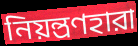
নিয়ন্ত্রণহারা